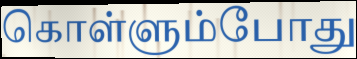
கொள்ளும்போது